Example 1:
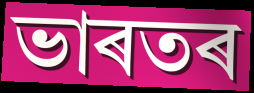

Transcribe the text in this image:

ভাৰতৰ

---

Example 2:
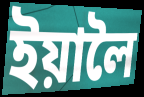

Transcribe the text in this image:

ইয়ালৈ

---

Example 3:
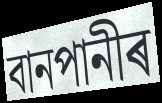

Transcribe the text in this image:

বানপানীৰ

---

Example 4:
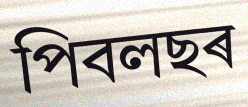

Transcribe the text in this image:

পিবলছৰ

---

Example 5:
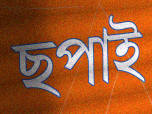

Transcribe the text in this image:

ছপাই